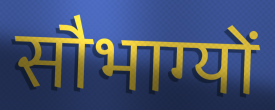
सौभाग्यों